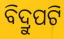
ବିଦ୍ରୁପଟି